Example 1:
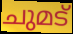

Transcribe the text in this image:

ചുമട്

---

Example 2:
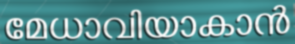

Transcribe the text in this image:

മേധാവിയാകാൻ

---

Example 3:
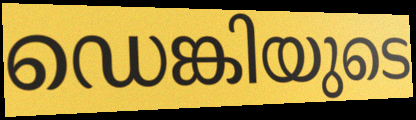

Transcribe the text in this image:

ഡെങ്കിയുടെ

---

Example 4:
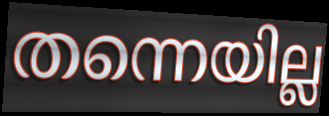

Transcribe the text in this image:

തന്നെയില്ല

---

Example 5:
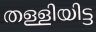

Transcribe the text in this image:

തള്ളിയിട്ട